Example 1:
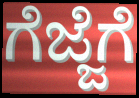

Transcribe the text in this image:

ಗೆಜ್ಜೆಗೆ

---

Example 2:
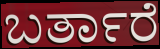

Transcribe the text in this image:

ಬರ್ತಾರೆ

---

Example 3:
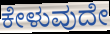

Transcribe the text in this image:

ಕೇಳುವುದೇ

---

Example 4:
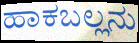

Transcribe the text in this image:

ಹಾಕಬಲ್ಲನು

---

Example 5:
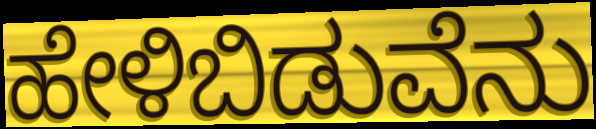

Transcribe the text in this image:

ಹೇಳಿಬಿಡುವೆನು